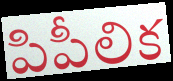
పిపీలిక